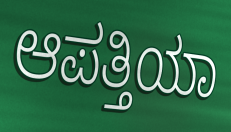
ಆಪತ್ತಿಯಾ